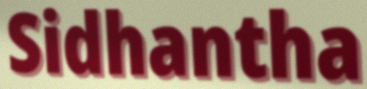
Sidhantha